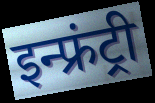
इन्फ्रंट्री